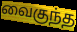
வைகுந்த